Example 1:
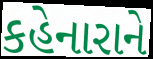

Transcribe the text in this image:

કહેનારાને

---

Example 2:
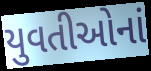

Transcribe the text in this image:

યુવતીઓનાં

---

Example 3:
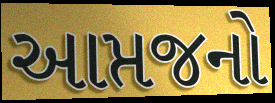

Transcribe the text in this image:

આપ્તજનો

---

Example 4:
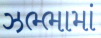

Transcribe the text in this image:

ઝભ્ભામાં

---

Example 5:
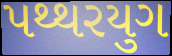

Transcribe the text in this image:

પથ્થરયુગ